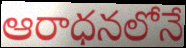
ఆరాధనలోనే